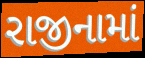
રાજીનામાં